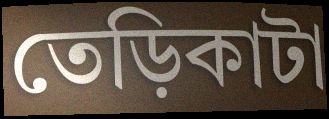
তেড়িকাটা